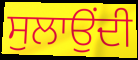
ਸੁਲਾਉਂਦੀ